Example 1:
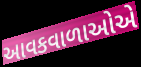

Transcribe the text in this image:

આવકવાળાઓએ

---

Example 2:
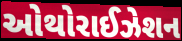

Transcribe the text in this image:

ઓથોરાઈઝેશન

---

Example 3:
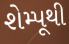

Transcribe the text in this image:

શેમ્પૂથી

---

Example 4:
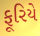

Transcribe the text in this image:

ફૂરિયે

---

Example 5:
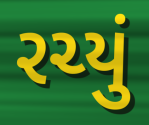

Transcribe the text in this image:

રચ્યું